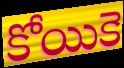
కోయికె